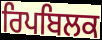
ਰਿਪਬਿਲਕ